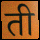
ती